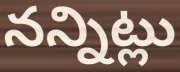
నన్నిట్లు